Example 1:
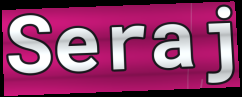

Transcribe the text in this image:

Seraj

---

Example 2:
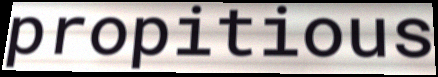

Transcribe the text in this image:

propitious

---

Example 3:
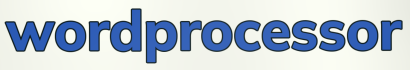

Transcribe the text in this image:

wordprocessor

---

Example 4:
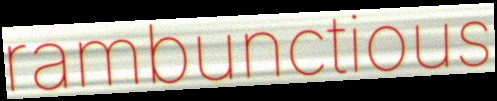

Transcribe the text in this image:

rambunctious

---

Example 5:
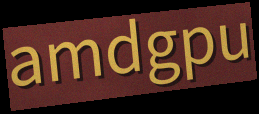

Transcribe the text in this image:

amdgpu